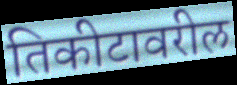
तिकीटावरील